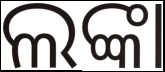
ଲଙ୍କା